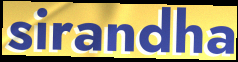
sirandha